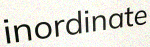
inordinate